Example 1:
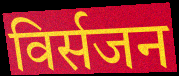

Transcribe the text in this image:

विर्सजन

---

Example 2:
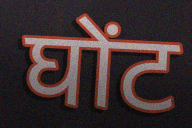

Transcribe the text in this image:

घोंट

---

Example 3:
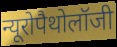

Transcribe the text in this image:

न्यूरोपैथोलॉजी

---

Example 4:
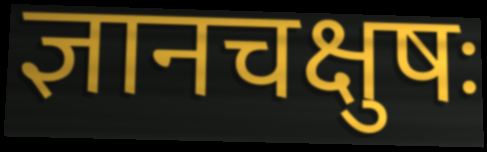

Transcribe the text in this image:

ज्ञानचक्षुषः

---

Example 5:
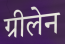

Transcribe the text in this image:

ग्रीलेन